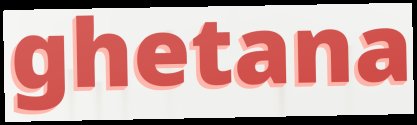
ghetana